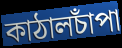
কাঠালচাঁপা